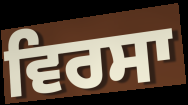
ਵਿਰਸਾ